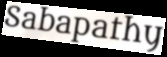
Sabapathy